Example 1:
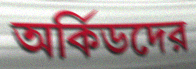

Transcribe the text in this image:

অর্কিডদের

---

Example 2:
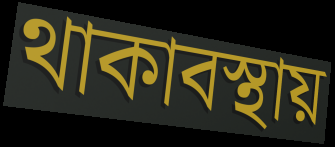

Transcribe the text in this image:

থাকাবস্থায়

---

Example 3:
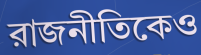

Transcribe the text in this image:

রাজনীতিকেও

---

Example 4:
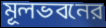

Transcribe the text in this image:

মূলভবনের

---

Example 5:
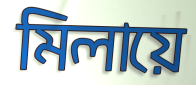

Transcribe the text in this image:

মিলায়ে